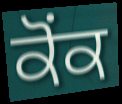
ਕੋਂਕ